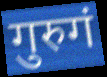
गुरुगं